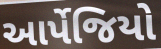
આર્પેજિયો